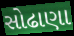
સોઢાણા